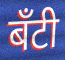
बँटी